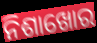
ନିଶାଖୋର